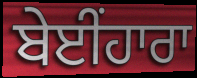
ਬੇਈਂਹਾਰਾ